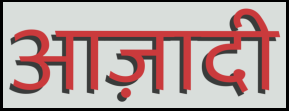
आज़ादी